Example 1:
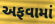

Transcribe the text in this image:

અફવામાં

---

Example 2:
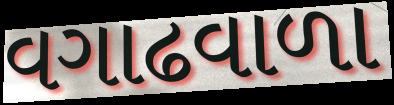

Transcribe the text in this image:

વગાઢવાળા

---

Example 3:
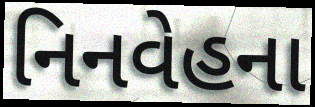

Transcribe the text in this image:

નિનવેહના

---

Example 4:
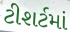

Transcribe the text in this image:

ટીશર્ટમાં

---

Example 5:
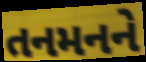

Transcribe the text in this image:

તનમનને